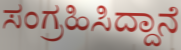
ಸಂಗ್ರಹಿಸಿದ್ದಾನೆ